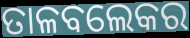
ତାଳବଲେକର